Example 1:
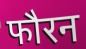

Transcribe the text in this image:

फौरन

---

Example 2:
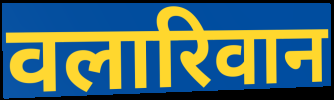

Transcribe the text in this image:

वलारिवान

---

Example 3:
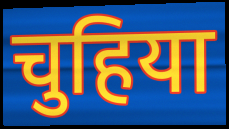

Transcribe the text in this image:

चुहिया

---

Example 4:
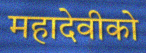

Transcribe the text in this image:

महादेवीको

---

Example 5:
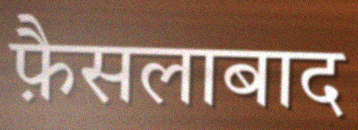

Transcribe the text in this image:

फ़ैसलाबाद